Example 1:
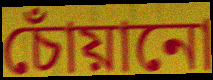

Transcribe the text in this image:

চোঁয়ানো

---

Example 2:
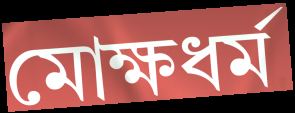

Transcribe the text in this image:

মোক্ষধর্ম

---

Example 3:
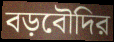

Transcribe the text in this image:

বড়বৌদির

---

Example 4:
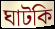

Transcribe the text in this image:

ঘাটকি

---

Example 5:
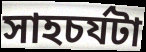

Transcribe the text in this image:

সাহচর্যটা